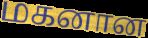
மகனான